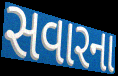
સવારના